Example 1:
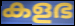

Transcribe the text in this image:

കളഭ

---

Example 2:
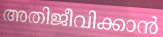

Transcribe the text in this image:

അതിജീവിക്കാൻ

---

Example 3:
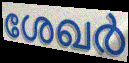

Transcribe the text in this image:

ശേഖർ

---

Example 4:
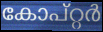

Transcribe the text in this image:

കോപ്റ്റർ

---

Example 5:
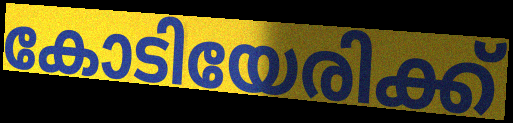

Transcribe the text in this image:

കോടിയേരിക്ക്